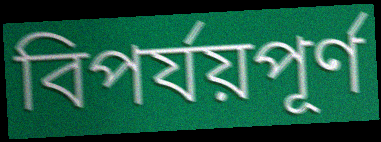
বিপর্যয়পূর্ণ